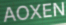
AOXEN